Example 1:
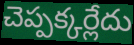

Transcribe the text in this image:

చెప్పక్కర్లేదు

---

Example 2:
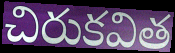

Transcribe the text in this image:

చిరుకవిత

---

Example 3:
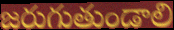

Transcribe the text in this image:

జరుగుతుండాలి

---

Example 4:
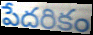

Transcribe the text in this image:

పేదరికం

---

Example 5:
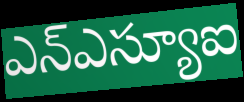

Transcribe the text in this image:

ఎన్ఎస్యూఐ